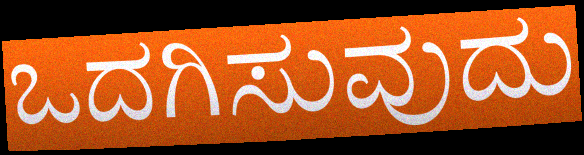
ಒದಗಿಸುವುದು